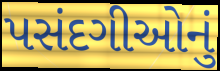
પસંદગીઓનું